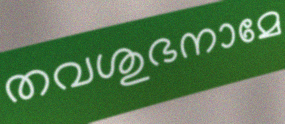
തവശുഭനാമേ